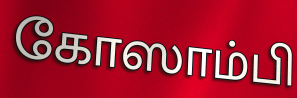
கோஸாம்பி